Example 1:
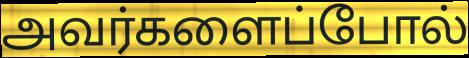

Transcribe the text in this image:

அவர்களைப்போல்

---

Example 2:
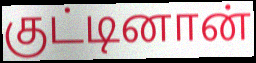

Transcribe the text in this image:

குட்டினான்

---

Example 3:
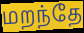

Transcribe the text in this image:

மறந்தே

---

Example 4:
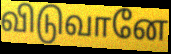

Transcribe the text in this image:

விடுவானே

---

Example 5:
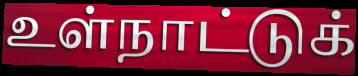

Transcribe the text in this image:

உள்நாட்டுக்